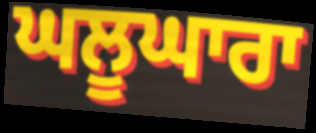
ਘਲੂਘਾਰਾ